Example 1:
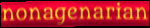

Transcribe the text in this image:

nonagenarian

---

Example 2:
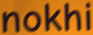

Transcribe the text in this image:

nokhi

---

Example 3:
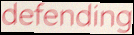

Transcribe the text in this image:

defending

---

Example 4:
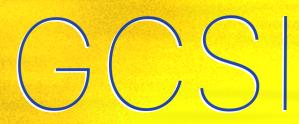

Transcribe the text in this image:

GCSI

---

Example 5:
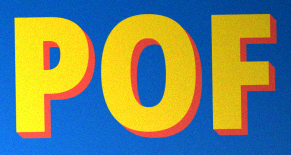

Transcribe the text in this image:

POF